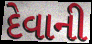
દેવાની